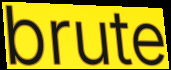
brute